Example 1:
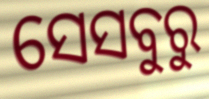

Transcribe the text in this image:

ସେସବୁରୁ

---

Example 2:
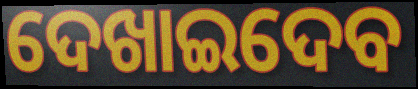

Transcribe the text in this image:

ଦେଖାଇଦେବ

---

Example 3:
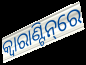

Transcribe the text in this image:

କ୍ବାରାଣ୍ଟିନ୍‌ରେ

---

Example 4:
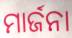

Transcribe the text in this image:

ମାର୍ଜନା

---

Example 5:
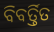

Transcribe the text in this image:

ବିବର୍ତ୍ତିତ